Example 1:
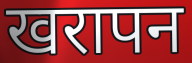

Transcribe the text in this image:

खरापन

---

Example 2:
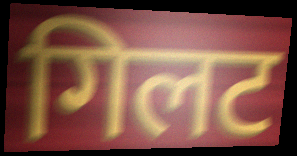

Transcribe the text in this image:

गिलट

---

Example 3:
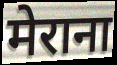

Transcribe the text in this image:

मेराना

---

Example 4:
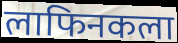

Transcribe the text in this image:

लाफिनकला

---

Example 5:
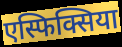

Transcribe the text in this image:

एस्फिक्सिया